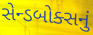
સેન્ડબોક્સનું